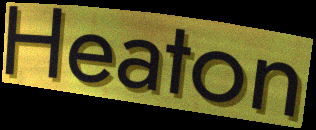
Heaton